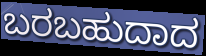
ಬರಬಹುದಾದ